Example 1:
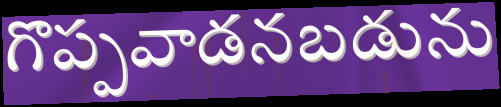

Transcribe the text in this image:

గొప్పవాడనబడును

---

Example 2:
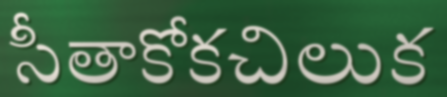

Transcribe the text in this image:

సీతాకోకచిలుక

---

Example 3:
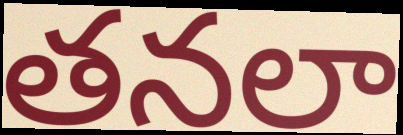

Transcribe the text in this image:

తనలా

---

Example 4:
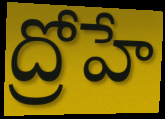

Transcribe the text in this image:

ద్రోహే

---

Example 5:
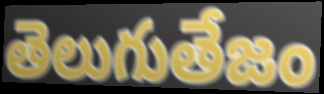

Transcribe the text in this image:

తెలుగుతేజం